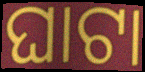
ଘାଟା